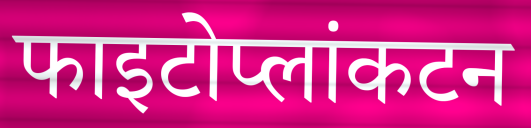
फाइटोप्लांकटन